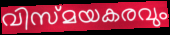
വിസ്മയകരവും